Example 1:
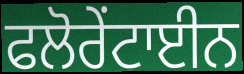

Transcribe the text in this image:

ਫਲੋਰੇਂਟਾਈਨ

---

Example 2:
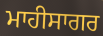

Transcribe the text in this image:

ਮਾਹੀਸਾਗਰ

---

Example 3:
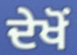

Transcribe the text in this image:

ਦੇਖੋਂ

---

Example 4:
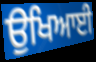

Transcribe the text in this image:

ਉਖਿਆਈ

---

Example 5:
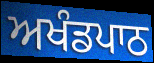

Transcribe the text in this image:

ਅਖੰਡਪਾਠ